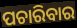
ପଚାରିବାର